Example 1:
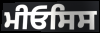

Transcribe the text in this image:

ਮੀਓਸਿਸ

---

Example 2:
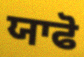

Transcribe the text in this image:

ਯਾਫੋ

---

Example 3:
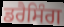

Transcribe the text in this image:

ਡਰੈਸਿੰਗ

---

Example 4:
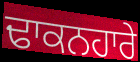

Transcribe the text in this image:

ਢਾਕਨਹਾਰੇ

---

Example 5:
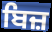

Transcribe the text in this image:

ਬਿਜ਼